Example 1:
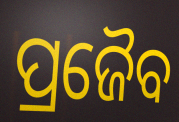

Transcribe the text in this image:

ପ୍ରଜୈବ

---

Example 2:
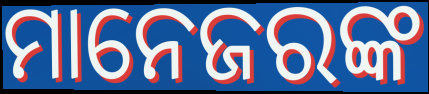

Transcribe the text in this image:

ମାନେଜରଙ୍କ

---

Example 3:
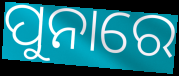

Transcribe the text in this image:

ପୁନାରେ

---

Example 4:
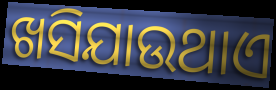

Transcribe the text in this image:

ଖସିଯାଉଥାଏ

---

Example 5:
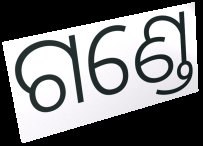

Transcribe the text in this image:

ଗଣ୍ଡେ